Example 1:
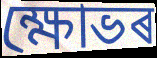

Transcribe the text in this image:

ক্ষোভৰ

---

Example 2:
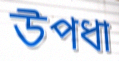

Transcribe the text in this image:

উপধা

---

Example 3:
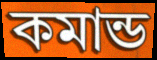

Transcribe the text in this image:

কমান্ড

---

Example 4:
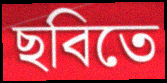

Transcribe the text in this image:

ছবিতে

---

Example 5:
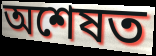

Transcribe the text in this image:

অশেষত